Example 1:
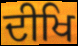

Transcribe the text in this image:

ਦੀਖਿ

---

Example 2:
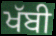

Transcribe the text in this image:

ਖੱਬੀ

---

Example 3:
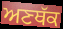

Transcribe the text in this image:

ਅਣਥੱਕ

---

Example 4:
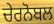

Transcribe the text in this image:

ਚੇਰਨੋਬਲ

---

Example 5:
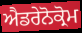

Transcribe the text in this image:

ਐਡਰੇਨੋਕ੍ਰੋਮ